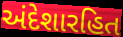
અંદેશારહિત